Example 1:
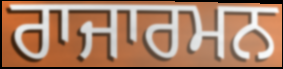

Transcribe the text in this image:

ਰਾਜਾਰਮਨ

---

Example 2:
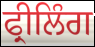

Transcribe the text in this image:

ਫ੍ਰੀਲਿੰਗ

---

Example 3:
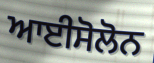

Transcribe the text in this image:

ਆਈਸੋਲੋਨ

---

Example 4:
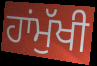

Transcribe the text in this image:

ਹਾਂਮੁੱਖੀ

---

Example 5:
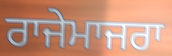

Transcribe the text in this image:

ਰਾਜੇਮਾਜਰਾ